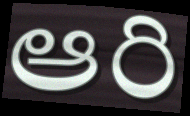
ఆరి